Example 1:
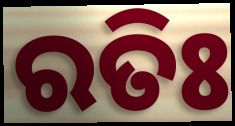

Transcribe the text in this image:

ରତିଃ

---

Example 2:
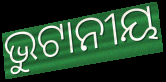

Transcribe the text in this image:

ଭୁଟାନୀୟ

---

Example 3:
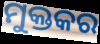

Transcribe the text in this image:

ମୁକ୍ତକର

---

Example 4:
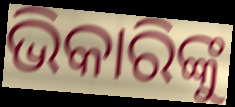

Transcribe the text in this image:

ଭିକାରିଙ୍କୁ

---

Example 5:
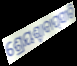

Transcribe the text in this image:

ଶ୍ରେୟଶ୍ଚାବାପ୍‌ସୀତି